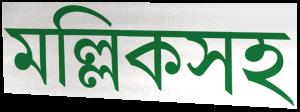
মল্লিকসহ